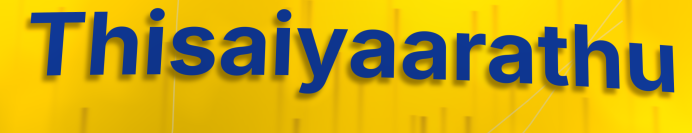
Thisaiyaarathu